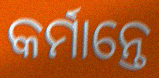
କର୍ମାନ୍ତେ